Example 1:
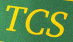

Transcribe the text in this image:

TCS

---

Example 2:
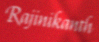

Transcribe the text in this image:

Rajinikanth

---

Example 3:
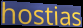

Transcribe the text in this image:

hostias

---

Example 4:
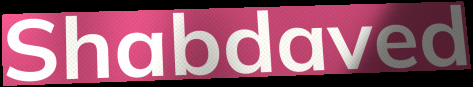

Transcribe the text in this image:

Shabdaved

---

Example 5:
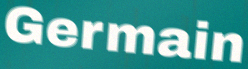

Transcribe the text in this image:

Germain